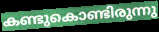
കണ്ടുകൊണ്ടിരുന്നു